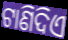
ଟାଣିଦିଏ